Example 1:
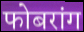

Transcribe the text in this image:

फोबरांग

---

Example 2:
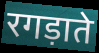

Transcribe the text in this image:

रगड़ाते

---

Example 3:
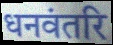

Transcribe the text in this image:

धनवंतरि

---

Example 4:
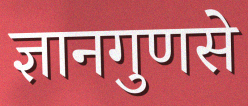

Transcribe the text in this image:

ज्ञानगुणसे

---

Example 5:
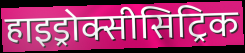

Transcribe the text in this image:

हाइड्रोक्सीसिट्रिक